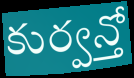
కుర్వన్తో